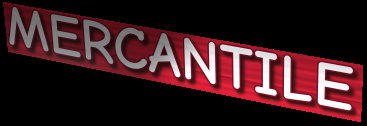
MERCANTILE